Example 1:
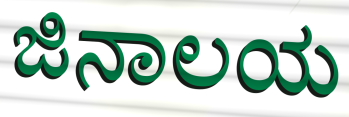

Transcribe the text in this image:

ಜಿನಾಲಯ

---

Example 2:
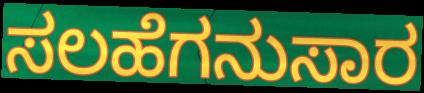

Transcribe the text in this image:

ಸಲಹೆಗನುಸಾರ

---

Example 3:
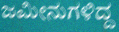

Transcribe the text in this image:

ಜಮೀನುಗಳಿದ್ದ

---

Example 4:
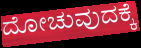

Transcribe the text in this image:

ದೋಚುವುದಕ್ಕೆ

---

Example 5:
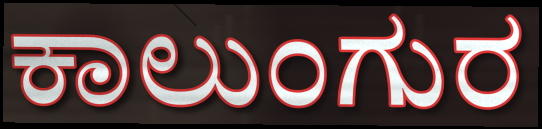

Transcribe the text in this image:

ಕಾಲುಂಗುರ